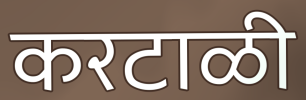
करटाळी